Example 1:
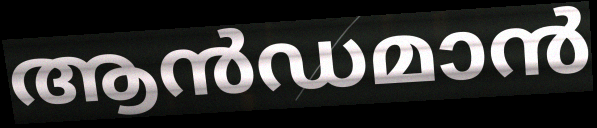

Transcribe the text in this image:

ആൻഡമാൻ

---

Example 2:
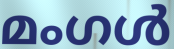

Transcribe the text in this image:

മംഗൾ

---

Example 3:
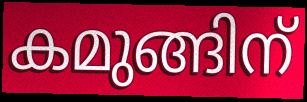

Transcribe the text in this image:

കമുങ്ങിന്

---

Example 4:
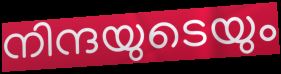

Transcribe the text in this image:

നിന്ദയുടെയും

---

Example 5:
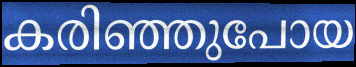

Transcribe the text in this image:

കരിഞ്ഞുപോയ